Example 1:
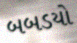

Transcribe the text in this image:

બબડયો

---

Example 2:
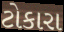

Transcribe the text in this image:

ટોકારા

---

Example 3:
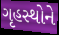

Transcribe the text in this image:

ગૃહસ્થોને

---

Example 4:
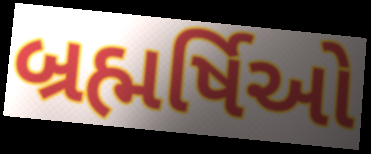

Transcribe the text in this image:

બ્રહ્મર્ષિઓ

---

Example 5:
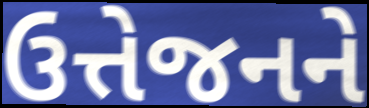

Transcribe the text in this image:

ઉત્તેજનને